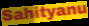
Sahityanu